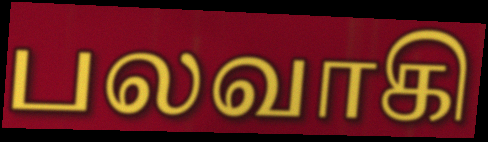
பலவாகி